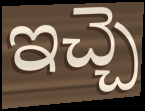
ఇచ్చె